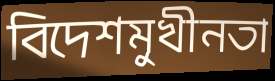
বিদেশমুখীনতা